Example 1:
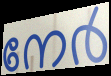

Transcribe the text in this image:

നേർ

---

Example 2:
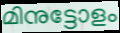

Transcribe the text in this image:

മിനുട്ടോളം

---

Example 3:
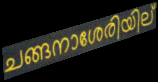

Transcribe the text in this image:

ചങ്ങനാശേരിയില്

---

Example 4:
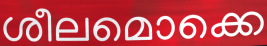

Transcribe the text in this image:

ശീലമൊക്കെ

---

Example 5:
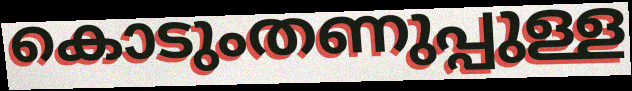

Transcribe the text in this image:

കൊടുംതണുപ്പുള്ള